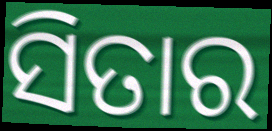
ସିତାର